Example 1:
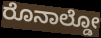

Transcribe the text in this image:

ರೊನಾಲ್ಡೋ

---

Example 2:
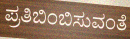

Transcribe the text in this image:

ಪ್ರತಿಬಿಂಬಿಸುವಂತೆ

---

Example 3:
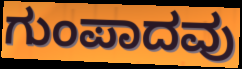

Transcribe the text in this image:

ಗುಂಪಾದವು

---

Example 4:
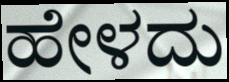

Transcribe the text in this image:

ಹೇಳದು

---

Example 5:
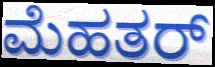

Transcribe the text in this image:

ಮೆಹತರ್